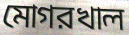
মোগরখাল